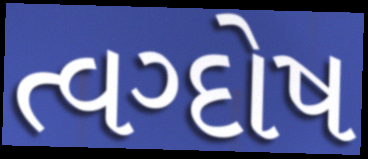
ત્વગ્દોષ